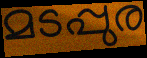
മടപ്പുര